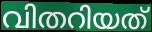
വിതറിയത്